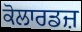
ਕੋਲਾਰਡਜ਼